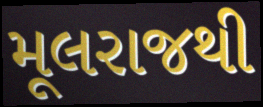
મૂલરાજથી